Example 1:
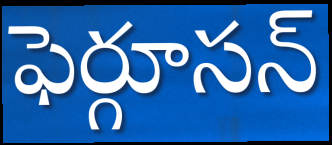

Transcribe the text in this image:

ఫెర్గూసన్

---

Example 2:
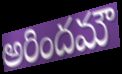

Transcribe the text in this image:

అరిందమౌ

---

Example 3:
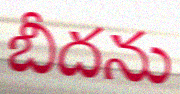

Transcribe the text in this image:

బీదను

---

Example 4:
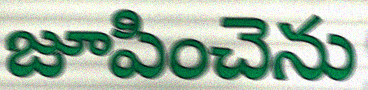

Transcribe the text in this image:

జూపించెను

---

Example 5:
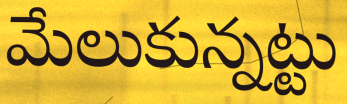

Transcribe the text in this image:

మేలుకున్నట్టు